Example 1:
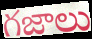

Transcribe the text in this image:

గజాలు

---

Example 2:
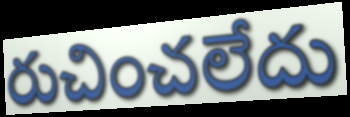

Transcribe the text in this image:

రుచించలేదు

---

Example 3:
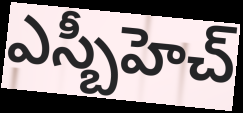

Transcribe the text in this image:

ఎస్బీహెచ్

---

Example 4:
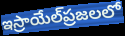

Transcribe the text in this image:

ఇస్రాయేల్‌ప్రజలలో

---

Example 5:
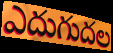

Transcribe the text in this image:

ఎదుగుదల